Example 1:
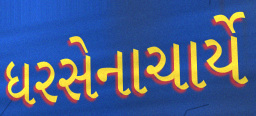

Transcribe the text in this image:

ધરસેનાચાર્યે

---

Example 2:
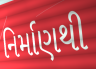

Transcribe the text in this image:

નિર્માણથી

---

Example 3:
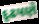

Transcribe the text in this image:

દૃઢપણે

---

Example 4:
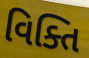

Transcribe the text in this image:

વિક્તિ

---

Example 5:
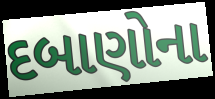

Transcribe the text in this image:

દબાણોના